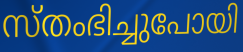
സ്തംഭിച്ചുപോയി